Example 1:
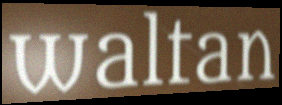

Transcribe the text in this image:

waltan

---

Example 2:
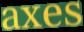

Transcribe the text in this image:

axes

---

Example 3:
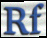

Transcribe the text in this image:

Rf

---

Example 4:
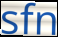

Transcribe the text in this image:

sfn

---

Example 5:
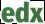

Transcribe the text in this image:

edx